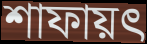
শাফায়ৎ